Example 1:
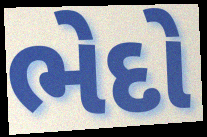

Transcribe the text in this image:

ભેદો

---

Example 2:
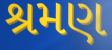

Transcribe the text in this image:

શ્રમણ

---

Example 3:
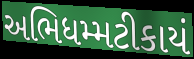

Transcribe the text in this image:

અભિધમ્મટીકાયં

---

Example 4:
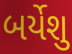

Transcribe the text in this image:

બર્યેશુ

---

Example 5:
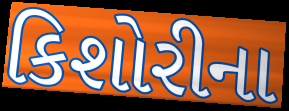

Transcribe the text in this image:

કિશોરીના